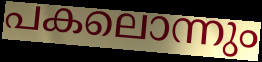
പകലൊന്നും